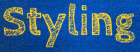
Styling